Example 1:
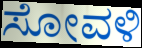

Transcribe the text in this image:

ಸೋವಳಿ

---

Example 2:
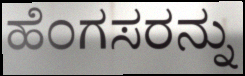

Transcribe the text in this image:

ಹೆಂಗಸರನ್ನು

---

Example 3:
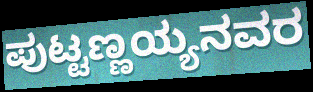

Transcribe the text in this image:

ಪುಟ್ಟಣ್ಣಯ್ಯನವರ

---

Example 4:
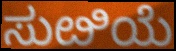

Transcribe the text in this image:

ಸುೞಿಯೆ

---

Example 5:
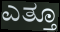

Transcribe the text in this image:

ಎತ್ತೂ